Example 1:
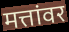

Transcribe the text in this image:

मत्तांवर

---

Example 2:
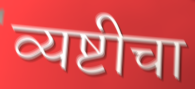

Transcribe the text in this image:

व्यष्टीचा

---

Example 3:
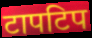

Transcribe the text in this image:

टापटिप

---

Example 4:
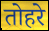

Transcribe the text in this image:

तोहरे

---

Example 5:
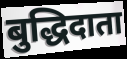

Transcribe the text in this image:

बुद्धिदाता